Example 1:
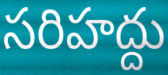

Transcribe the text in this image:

సరిహద్దు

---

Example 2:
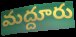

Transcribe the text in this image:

మద్దూరు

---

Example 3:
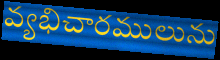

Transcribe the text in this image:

వ్యభిచారములును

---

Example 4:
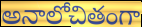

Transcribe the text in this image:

అనాలోచితంగా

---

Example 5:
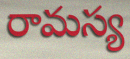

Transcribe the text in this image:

రామస్య